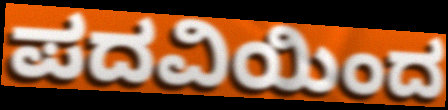
ಪದವಿಯಿಂದ